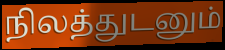
நிலத்துடனும்